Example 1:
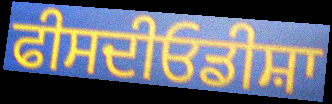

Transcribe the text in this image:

ਫੀਸਦੀਓਡੀਸ਼ਾ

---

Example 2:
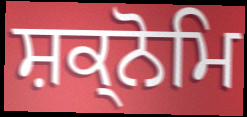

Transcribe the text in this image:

ਸ਼ਕ੍ਨੋਮਿ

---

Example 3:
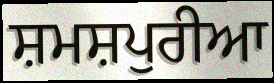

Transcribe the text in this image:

ਸ਼ਮਸ਼ਪੁਰੀਆ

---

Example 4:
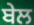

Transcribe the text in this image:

ਬੇਲ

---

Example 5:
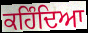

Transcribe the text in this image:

ਕਹਿੰਦਿਆ